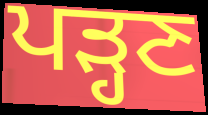
ਪੜ੍ਹਣ